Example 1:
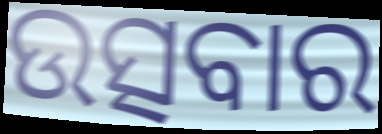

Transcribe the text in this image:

ଉତ୍ସବାର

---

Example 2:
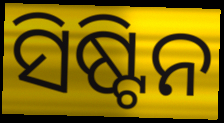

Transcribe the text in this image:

ସିଷ୍ଟିନ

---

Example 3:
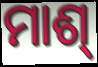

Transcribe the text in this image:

ମାଶ୍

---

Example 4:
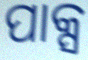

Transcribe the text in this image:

ପାକ୍ସ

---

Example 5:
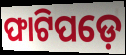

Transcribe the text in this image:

ଫାଟିପଡ଼େ